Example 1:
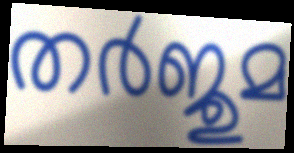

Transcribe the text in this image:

തർജുമ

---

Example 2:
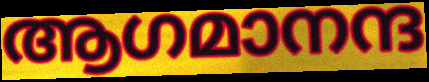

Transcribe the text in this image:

ആഗമാനന്ദ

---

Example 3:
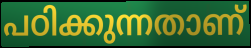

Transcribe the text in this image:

പഠിക്കുന്നതാണ്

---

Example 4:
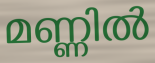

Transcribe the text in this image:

മണ്ണിൽ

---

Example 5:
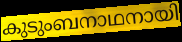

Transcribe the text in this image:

കുടുംബനാഥനായി